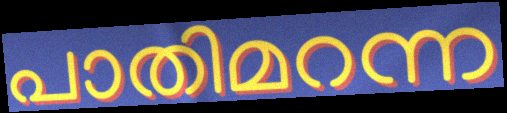
പാതിമറന്ന